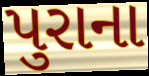
પુરાના